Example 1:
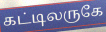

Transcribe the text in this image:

கட்டிலருகே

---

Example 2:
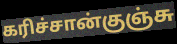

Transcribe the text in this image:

கரிச்சான்குஞ்சு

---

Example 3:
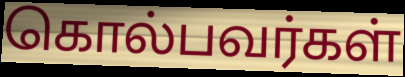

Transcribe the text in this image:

கொல்பவர்கள்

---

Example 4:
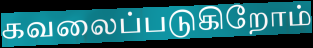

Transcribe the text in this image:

கவலைப்படுகிறோம்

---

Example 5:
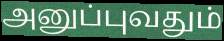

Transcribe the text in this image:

அனுப்புவதும்